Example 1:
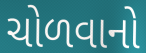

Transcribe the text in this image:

ચોળવાનો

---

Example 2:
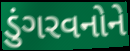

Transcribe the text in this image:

ડુંગરવનોને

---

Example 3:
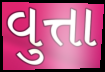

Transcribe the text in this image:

વુત્તા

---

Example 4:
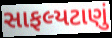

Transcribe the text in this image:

સાફલ્યટાણું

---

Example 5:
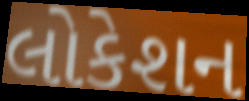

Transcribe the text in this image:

લોકેશન